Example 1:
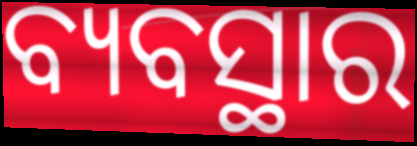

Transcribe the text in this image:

ବ୍ୟବସ୍ଥାର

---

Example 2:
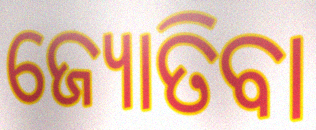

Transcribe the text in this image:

ଜ୍ୟୋତିବା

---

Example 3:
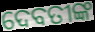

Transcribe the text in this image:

ଦେବତୀଙ୍କ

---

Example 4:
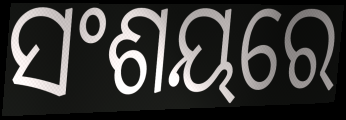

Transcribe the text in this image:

ସଂଶୟରେ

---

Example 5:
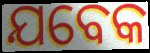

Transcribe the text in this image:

ଯବେକ